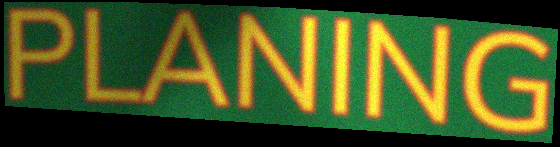
PLANING